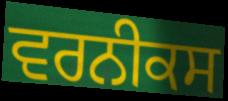
ਵਰਨੀਕਸ